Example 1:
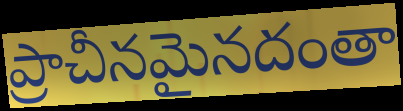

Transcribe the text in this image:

ప్రాచీనమైనదంతా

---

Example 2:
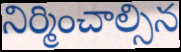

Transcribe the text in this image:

నిర్మించాల్సిన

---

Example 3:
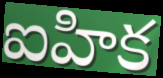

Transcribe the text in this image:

ఐహిక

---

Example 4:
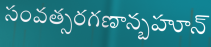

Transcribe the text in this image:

సంవత్సరగణాన్బహూన్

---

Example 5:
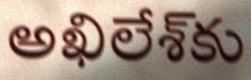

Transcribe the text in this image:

అఖిలేశ్‌కు